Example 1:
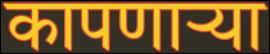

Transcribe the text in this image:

कापणाऱ्या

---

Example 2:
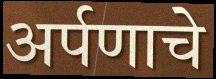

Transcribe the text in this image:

अर्पणाचे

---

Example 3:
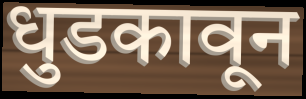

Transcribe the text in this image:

धुडकावून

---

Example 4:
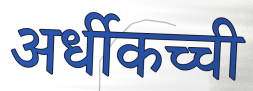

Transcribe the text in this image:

अर्धीकच्ची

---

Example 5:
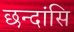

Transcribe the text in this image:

छन्दांसि